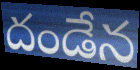
దండేన